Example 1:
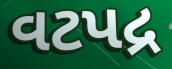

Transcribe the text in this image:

વટપદ્ર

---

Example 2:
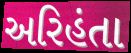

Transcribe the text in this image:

અરિહંતા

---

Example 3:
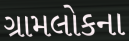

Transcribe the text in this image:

ગ્રામલોકના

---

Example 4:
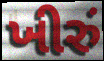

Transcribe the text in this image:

ખીરું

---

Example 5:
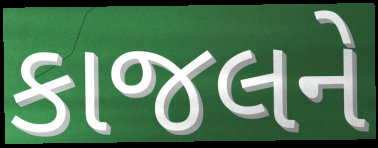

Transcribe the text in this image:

કાજલને